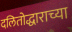
दलितोद्धाराच्या